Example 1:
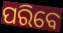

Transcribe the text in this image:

ପରିବେ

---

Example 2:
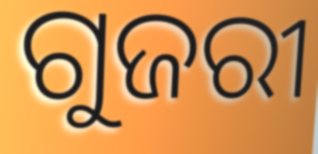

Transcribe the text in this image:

ଗୁଜରୀ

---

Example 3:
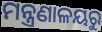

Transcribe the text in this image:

ମନ୍ତ୍ରଣାଳୟରୁ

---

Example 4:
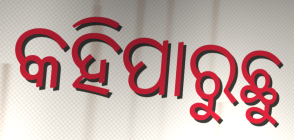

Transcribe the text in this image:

କହିପାରୁଛୁ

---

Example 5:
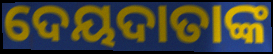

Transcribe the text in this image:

ଦେୟଦାତାଙ୍କ